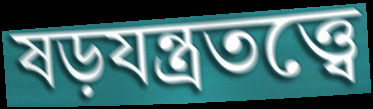
ষড়যন্ত্রতত্ত্বে